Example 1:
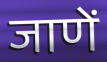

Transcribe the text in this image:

जाणें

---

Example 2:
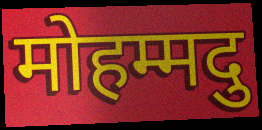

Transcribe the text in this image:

मोहम्मदु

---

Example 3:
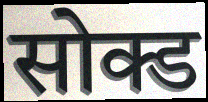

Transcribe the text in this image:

सोक्ड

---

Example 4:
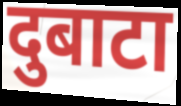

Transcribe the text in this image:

दुबाटा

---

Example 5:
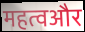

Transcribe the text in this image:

महत्वऔर